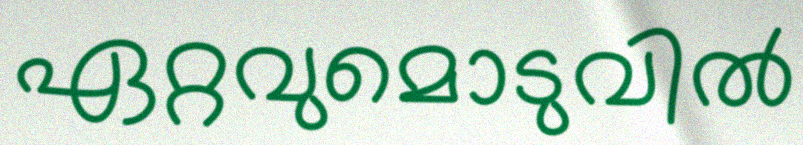
ഏറ്റവുമൊടുവിൽ